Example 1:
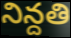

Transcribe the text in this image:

నిన్దతి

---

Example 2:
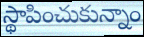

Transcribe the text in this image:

స్థాపించుకున్నాం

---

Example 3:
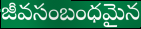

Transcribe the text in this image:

జీవసంబంధమైన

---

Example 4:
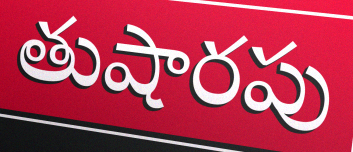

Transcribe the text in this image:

తుషారపు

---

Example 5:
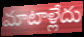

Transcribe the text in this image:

మాటాళ్లేదు